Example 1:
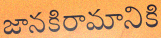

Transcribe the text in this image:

జానకిరామానికి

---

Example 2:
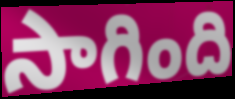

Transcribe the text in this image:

సాగింది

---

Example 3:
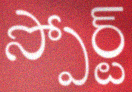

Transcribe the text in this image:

స్పోర్ట్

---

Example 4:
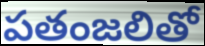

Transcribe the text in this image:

పతంజలితో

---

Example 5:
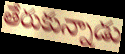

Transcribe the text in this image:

తేరుకున్నాడు